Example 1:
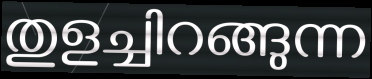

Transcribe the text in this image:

തുളച്ചിറങ്ങുന്ന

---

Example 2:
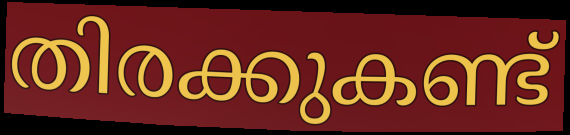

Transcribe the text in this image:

തിരക്കുകണ്ട്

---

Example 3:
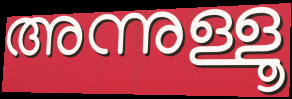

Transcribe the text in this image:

അന്നുള്ളൂ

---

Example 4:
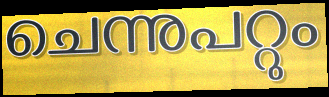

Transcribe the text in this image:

ചെന്നുപറ്റും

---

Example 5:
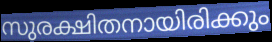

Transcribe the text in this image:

സുരക്ഷിതനായിരിക്കും